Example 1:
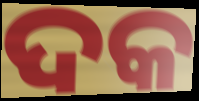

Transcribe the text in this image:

ଦକ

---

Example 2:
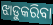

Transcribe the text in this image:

ଝାଡୁକରିବା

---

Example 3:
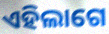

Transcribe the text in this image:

ଏହିଲାଗେ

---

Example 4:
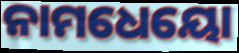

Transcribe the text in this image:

ନାମଧେୟୋ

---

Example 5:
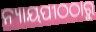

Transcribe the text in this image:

ନ୍ୟାୟପୀଠଠାରୁ